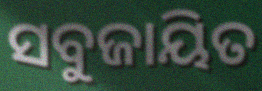
ସବୁଜାୟିତ